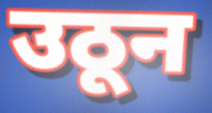
उठून